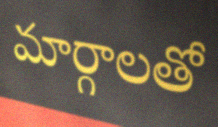
మార్గాలతో